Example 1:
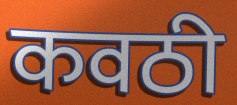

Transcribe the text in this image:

कवठी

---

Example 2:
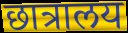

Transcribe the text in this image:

छात्रालय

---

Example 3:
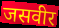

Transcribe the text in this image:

जसवीर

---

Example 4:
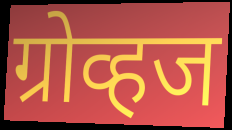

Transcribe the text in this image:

ग्रोव्हज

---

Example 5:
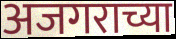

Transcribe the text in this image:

अजगराच्या